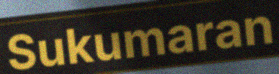
Sukumaran